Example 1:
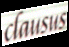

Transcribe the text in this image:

clausus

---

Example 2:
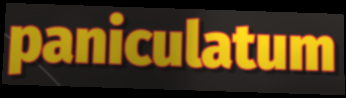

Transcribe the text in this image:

paniculatum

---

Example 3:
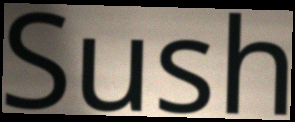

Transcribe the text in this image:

Sush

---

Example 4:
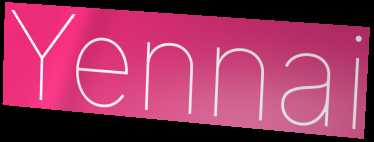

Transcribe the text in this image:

Yennai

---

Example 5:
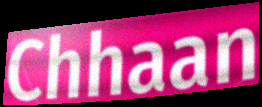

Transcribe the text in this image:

Chhaan